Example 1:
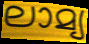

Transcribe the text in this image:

ലാമ്യ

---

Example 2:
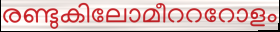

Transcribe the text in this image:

രണ്ടുകിലോമീറററോളം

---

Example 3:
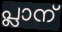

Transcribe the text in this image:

പ്ലാന്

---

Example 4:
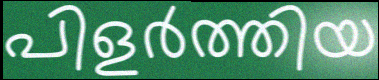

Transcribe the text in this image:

പിളർത്തിയ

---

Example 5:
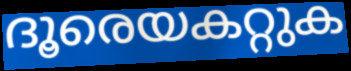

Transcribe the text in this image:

ദൂരെയകറ്റുക